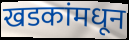
खडकांमधून